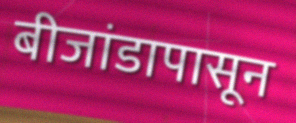
बीजांडापासून